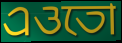
এওতো